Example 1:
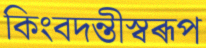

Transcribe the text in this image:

কিংবদন্তীস্বৰূপ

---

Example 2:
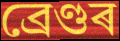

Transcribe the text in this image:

ব্ৰেণ্ডৰ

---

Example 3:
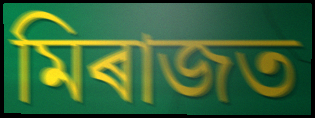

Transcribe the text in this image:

মিৰাজত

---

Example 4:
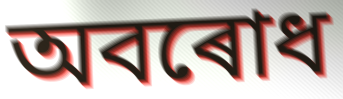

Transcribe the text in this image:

অবৰোধ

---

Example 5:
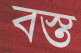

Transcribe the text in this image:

বস্ত